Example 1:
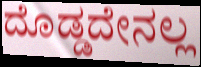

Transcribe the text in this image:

ದೊಡ್ಡದೇನಲ್ಲ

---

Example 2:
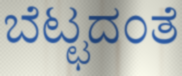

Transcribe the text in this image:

ಬೆಟ್ಟದಂತೆ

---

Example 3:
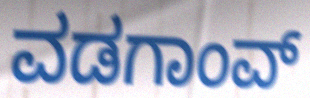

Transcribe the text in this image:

ವಡಗಾಂವ್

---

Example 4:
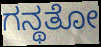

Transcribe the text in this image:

ಗನ್ಥತೋ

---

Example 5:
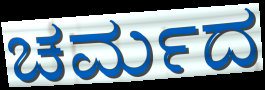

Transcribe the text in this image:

ಚರ್ಮದ